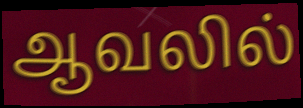
ஆவலில்